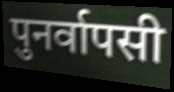
पुनर्वापसी